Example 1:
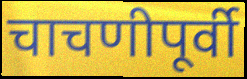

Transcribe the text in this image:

चाचणीपूर्वी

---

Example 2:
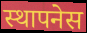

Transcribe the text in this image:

स्थापनेस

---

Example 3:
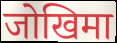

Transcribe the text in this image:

जोखिमा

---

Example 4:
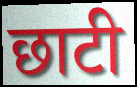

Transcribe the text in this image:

छाटी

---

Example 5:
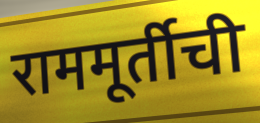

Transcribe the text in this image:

राममूर्तीची